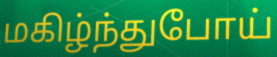
மகிழ்ந்துபோய்